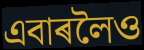
এবাৰলৈও